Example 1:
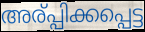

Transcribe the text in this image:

അര്പ്പിക്കപ്പെട്ട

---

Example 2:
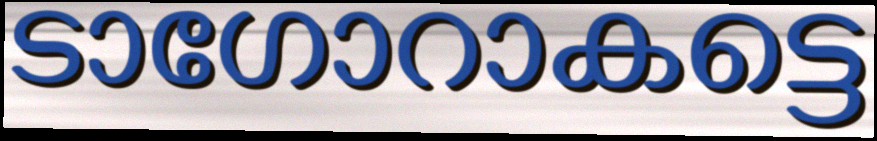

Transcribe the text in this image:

ടാഗോറാകട്ടെ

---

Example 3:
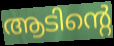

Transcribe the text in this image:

ആടിന്റെ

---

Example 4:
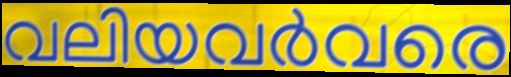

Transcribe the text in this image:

വലിയവർവരെ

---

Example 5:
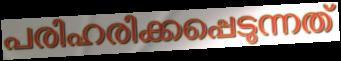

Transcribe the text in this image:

പരിഹരിക്കപ്പെടുന്നത്